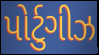
પોર્ટુગીઝ